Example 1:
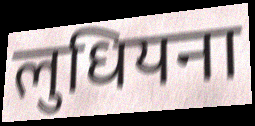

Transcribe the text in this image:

लुधियना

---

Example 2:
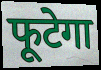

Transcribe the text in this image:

फूटेगा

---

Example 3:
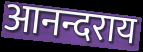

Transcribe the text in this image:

आनन्दराय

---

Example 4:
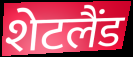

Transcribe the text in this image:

शेटलैंड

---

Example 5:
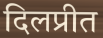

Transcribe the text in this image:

दिलप्रीत